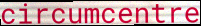
circumcentre